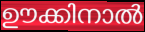
ഊക്കിനാൽ